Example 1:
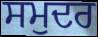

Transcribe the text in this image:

ਸਮੁਦਰ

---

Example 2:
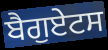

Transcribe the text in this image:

ਬੈਗੁਏਟਸ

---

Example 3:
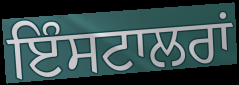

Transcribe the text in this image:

ਇੰਸਟਾਲਰਾਂ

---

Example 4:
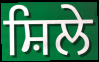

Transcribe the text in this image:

ਸ਼ਿਲੇ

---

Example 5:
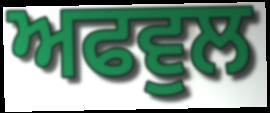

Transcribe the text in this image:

ਅਫਵੁਲ